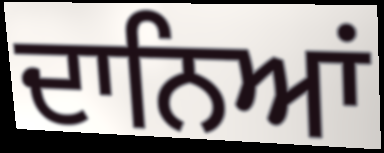
ਦਾਨਿਆਂ